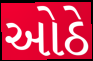
ઓઠે